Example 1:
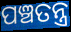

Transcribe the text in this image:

ପଞ୍ଚତନ୍ତ୍ର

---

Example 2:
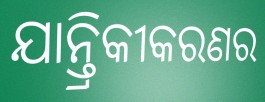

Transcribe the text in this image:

ଯାନ୍ତ୍ରିକୀକରଣର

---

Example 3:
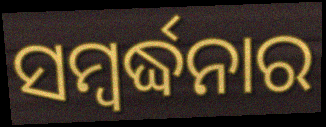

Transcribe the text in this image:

ସମ୍ବର୍ଦ୍ଧନାର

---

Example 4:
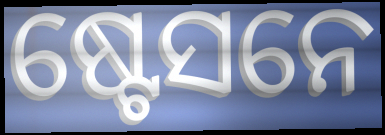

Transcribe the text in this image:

ଷ୍ଟେସନେ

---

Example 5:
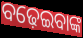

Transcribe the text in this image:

ବଢ଼େଇବାଙ୍କ